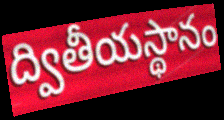
ద్వితీయస్థానం